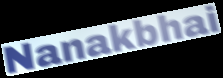
Nanakbhai